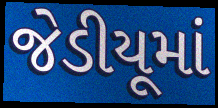
જેડીયૂમાં